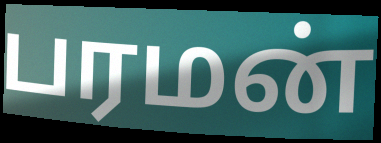
பரமன்